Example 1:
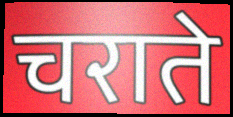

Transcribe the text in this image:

चराते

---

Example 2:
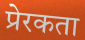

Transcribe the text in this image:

प्रेरकता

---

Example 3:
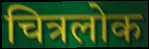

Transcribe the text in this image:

चित्रलोक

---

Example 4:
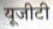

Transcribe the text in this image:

यूजीटी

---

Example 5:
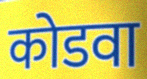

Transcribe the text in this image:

कोडवा